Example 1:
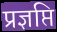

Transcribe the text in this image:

प्रज्ञप्ति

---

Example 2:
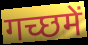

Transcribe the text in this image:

गच्छमें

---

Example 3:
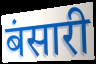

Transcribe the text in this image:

बंसारी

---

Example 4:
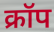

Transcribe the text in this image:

क्रॉप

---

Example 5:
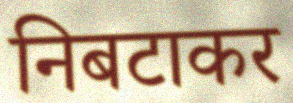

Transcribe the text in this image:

निबटाकर